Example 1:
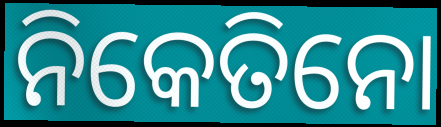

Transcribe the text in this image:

ନିକେତିନୋ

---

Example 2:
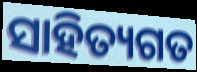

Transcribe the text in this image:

ସାହିତ୍ୟଗତ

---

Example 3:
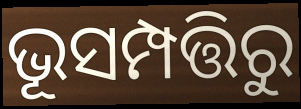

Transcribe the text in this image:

ଭୂସମ୍ପତ୍ତିରୁ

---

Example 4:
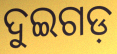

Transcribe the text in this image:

ଦୁଇଗଡ଼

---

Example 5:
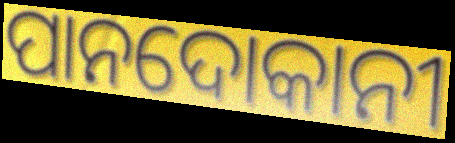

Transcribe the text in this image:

ପାନଦୋକାନୀ